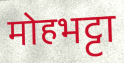
मोहभट्टा